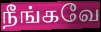
நீங்கவே